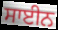
ਸਾਈਨ